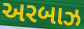
અરબાઝ